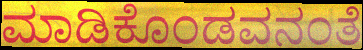
ಮಾಡಿಕೊಂಡವನಂತೆ